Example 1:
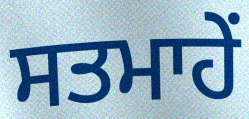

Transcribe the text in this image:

ਸਤਮਾਹੇਂ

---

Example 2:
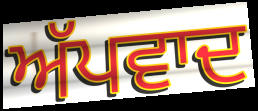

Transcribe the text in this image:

ਅੱਪਵਾਦ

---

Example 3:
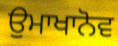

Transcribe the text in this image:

ਉਮਾਖਾਨੋਵ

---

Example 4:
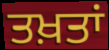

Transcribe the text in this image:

ਤਖ਼ਤਾਂ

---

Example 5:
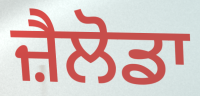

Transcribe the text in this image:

ਜ਼ੈਲੋਡਾ